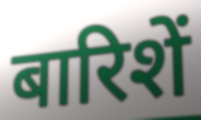
बारिशें